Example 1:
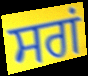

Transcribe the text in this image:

ਸਗਂ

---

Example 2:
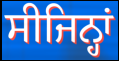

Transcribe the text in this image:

ਸੀਜਿਨ੍ਹਾਂ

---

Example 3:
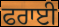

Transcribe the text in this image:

ਫਰਾਈ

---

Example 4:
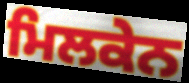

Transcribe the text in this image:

ਮਿਲਕੇਨ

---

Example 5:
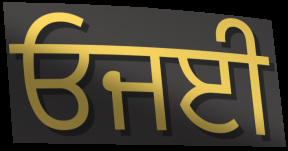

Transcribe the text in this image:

ਓਜਈ